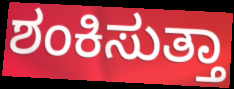
ಶಂಕಿಸುತ್ತಾ